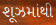
શૂઝમાંથી